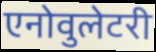
एनोवुलेटरी